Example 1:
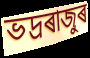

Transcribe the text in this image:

ভদ্ৰৰাজুৰ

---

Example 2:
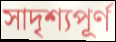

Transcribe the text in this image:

সাদৃশ্যপূৰ্ণ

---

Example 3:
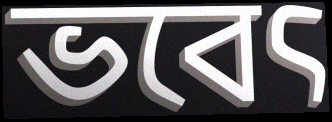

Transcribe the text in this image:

ভবেৎ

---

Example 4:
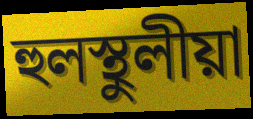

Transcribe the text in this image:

হুলস্থুলীয়া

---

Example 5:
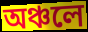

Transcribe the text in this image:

অঞ্চলে